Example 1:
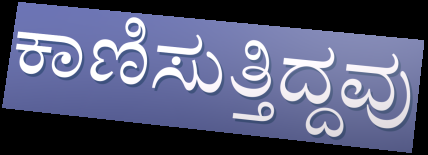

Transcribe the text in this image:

ಕಾಣಿಸುತ್ತಿದ್ದವು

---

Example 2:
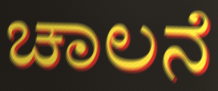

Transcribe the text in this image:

ಚಾಲನೆ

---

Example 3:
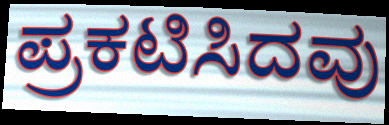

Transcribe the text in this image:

ಪ್ರಕಟಿಸಿದವು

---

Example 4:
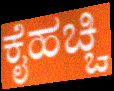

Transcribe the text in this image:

ಕೈಹಚ್ಚಿ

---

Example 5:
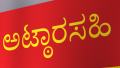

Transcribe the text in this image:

ಅಟ್ಠಾರಸಹಿ